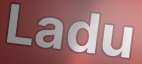
Ladu